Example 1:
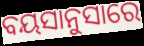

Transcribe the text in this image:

ବୟସାନୁସାରେ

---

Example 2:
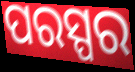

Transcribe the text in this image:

ପରସ୍ପର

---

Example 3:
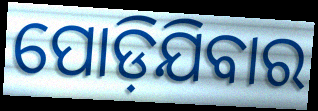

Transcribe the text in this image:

ପୋଡ଼ିଯିବାର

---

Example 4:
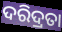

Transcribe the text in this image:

ଦରିଦ୍ରତା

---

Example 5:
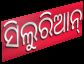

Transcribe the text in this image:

ସିଲୁରିଆନ୍